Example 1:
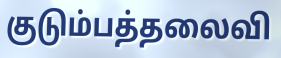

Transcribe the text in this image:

குடும்பத்தலைவி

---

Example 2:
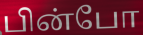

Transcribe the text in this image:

பின்போ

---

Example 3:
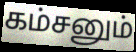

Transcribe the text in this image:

கம்சனும்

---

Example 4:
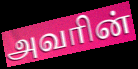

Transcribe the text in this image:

அவரின்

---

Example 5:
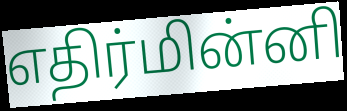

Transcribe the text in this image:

எதிர்மின்னி